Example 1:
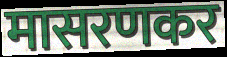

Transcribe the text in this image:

मासरणकर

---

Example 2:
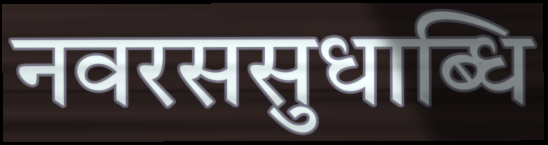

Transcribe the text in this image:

नवरससुधाब्धि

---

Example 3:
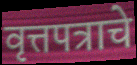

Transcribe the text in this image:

वृत्तपत्राचे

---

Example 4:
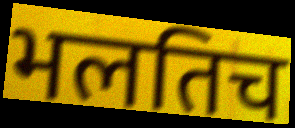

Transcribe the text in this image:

भलतिच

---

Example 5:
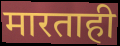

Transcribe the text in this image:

मारताही